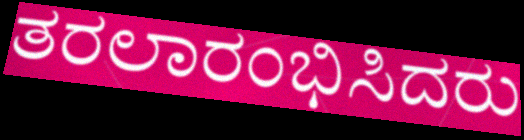
ತರಲಾರಂಭಿಸಿದರು